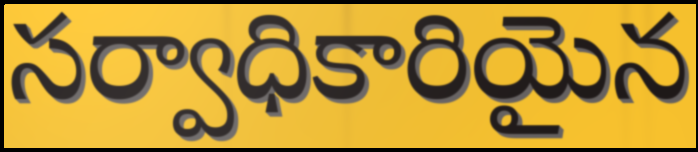
సర్వాధికారియైన